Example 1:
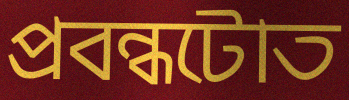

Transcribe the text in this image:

প্ৰবন্ধটোত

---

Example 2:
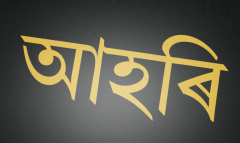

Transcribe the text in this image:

আহৰি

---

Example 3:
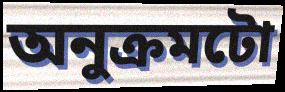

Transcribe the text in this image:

অনুক্ৰমটো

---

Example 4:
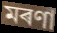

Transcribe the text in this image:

মৰণা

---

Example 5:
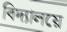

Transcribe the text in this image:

বিদ্যালয়ে